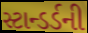
સ્ટાન્ડર્ડની